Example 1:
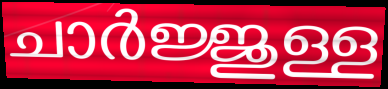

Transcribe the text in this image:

ചാർജ്ജുള്ള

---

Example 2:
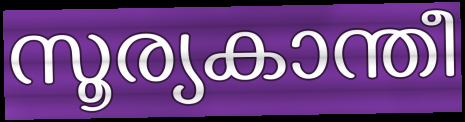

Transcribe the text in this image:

സൂര്യകാന്തീ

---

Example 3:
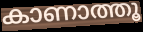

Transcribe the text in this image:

കാണാത്തൂ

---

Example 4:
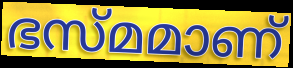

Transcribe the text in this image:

ഭസ്മമാണ്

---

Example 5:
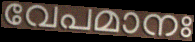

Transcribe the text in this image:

വേപമാനഃ